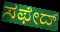
ಸಫೇದ್